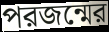
পরজন্মের